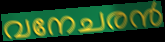
വനേചരൻ